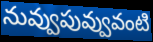
నువ్వుపువ్వువంటి